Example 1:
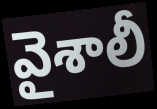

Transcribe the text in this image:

వైశాలీ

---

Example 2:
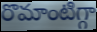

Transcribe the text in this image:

రొమాంటిగ్గా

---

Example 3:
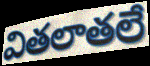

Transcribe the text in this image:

వితలాతలే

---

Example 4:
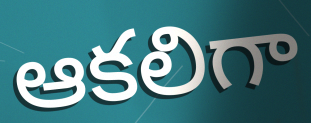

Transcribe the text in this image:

ఆకలిగా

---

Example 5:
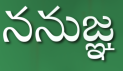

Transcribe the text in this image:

ననుజ్ఞ